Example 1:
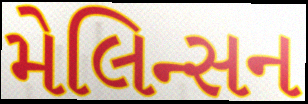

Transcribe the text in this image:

મેલિન્સન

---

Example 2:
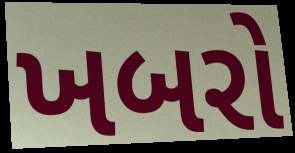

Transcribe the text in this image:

ખબરો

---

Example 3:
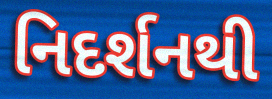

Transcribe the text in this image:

નિદર્શનથી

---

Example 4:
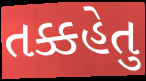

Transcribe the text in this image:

તક્કહેતુ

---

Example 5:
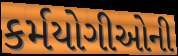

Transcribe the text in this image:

કર્મયોગીઓની